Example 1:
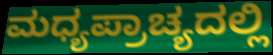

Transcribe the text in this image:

ಮಧ್ಯಪ್ರಾಚ್ಯದಲ್ಲಿ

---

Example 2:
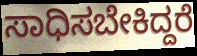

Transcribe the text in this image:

ಸಾಧಿಸಬೇಕಿದ್ದರೆ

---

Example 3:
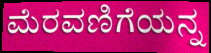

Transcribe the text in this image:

ಮೆರವಣಿಗೆಯನ್ನ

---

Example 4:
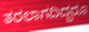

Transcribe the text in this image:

ತರಲಾಗದಿದ್ದರೂ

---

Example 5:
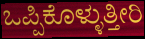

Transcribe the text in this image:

ಒಪ್ಪಿಕೊಳ್ಳುತ್ತೀರಿ